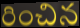
రించిన